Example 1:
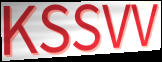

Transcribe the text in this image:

KSSVV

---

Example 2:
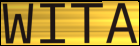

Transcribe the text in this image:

WITA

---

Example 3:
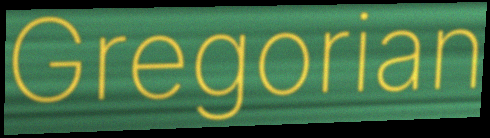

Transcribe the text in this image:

Gregorian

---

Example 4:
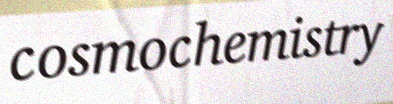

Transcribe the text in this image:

cosmochemistry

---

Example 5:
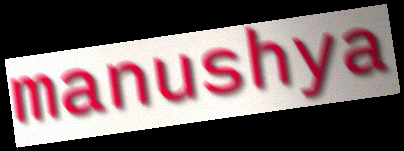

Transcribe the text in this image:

manushya